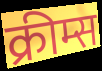
क्रीम्‍स